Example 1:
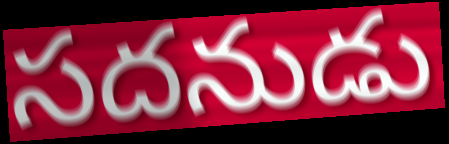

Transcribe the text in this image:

సదనుడు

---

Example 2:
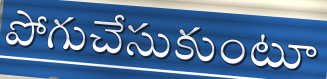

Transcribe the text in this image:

పోగుచేసుకుంటూ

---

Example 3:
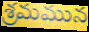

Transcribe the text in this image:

శ్రమమున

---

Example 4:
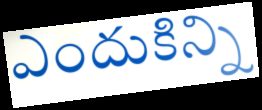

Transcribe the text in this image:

ఎందుకిన్ని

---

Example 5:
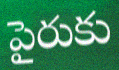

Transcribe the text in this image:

పైరుకు